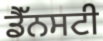
ਡੈੱਨਸਟੀ